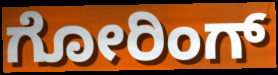
ಗೋರಿಂಗ್